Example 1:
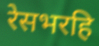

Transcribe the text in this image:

रेसभरहि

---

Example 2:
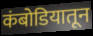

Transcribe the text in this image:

कंबोडियातून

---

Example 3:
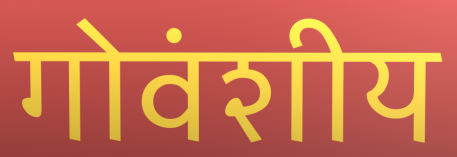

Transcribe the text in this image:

गोवंशीय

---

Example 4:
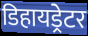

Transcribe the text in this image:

डिहायड्रेटर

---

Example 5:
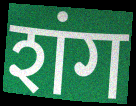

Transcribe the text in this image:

शंग